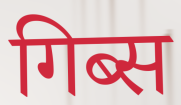
गिब्स